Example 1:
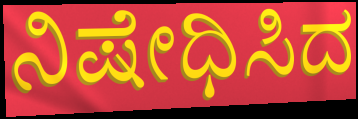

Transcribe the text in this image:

ನಿಷೇಧಿಸಿದ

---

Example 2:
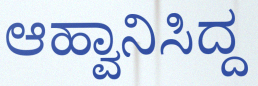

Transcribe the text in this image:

ಆಹ್ವಾನಿಸಿದ್ದ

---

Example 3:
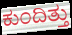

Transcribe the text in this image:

ಕುಂದಿತ್ತು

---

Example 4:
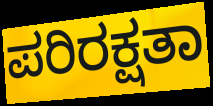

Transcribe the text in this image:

ಪರಿರಕ್ಷತಾ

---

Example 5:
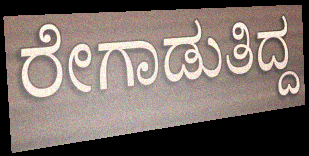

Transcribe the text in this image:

ರೇಗಾಡುತಿದ್ದ